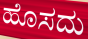
ಹೊಸದು